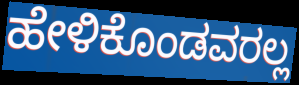
ಹೇಳಿಕೊಂಡವರಲ್ಲ